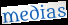
medias